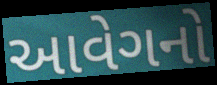
આવેગનો